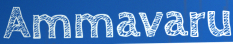
Ammavaru